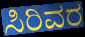
ಸಿರಿವರ